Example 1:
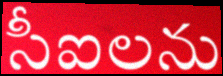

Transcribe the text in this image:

సీఐలను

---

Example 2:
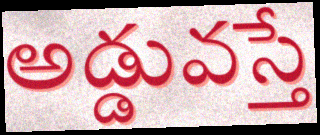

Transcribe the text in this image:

అడ్డువస్తే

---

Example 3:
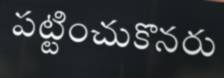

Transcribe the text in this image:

పట్టించుకొనరు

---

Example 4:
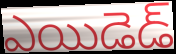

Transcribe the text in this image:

ఎయిడెడ్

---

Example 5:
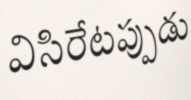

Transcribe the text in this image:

విసిరేటప్పుడు